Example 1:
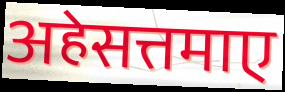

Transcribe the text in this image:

अहेसत्तमाए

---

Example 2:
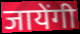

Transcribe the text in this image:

जायेंगी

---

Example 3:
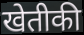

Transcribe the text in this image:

खेतीकी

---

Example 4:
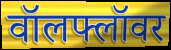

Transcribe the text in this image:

वॉलफ्लॉवर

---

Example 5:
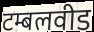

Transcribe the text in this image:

टम्बलवीड